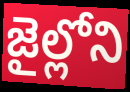
జైల్లోని